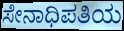
ಸೇನಾಧಿಪತಿಯ